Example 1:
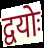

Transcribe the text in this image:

द्वयोः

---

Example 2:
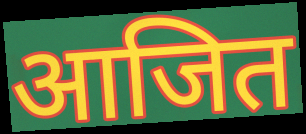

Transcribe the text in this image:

आजित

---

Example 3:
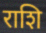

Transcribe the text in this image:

राशि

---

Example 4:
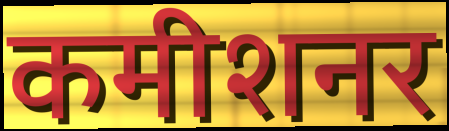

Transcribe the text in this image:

कमीशनर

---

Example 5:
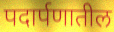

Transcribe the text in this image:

पदार्पणातील